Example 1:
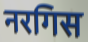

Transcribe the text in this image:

नरगिस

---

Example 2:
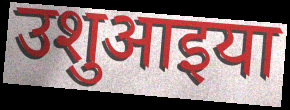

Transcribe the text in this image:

उशुआइया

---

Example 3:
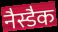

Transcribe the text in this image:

नैस्डैक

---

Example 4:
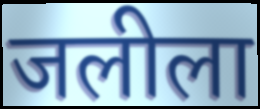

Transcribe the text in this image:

जलीला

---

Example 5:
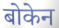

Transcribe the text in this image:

बोकेन